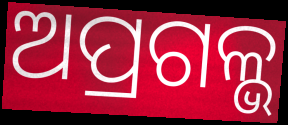
ଅପ୍ରଗଳ୍ଭ